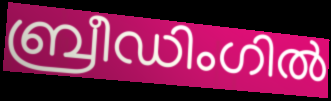
ബ്രീഡിംഗിൽ